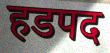
हडपद